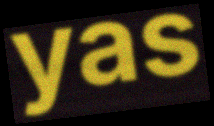
yas